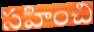
సహించి